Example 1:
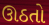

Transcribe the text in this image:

ઊઠતો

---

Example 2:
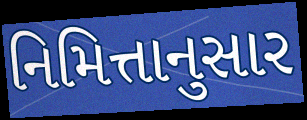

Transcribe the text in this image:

નિમિત્તાનુસાર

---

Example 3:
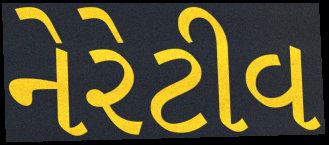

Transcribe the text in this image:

નેરેટીવ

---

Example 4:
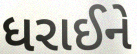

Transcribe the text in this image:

ધરાઈને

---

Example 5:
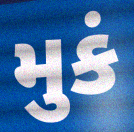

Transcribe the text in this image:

મુકં